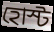
হোস্ট